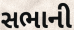
સભાની